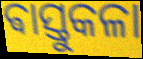
ଵାସ୍ତୁକଳା